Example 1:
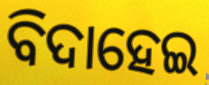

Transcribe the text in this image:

ବିଦାହେଇ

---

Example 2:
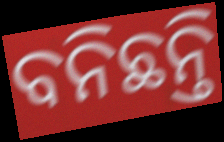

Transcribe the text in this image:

ବନିଛନ୍ତି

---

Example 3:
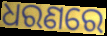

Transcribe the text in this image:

ଧରଣରେ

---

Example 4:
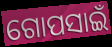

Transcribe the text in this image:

ଗୋପସାଇଁ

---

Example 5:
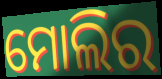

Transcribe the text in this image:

ମୋଲିର